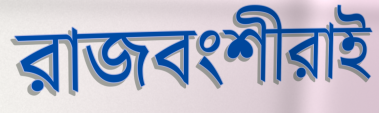
রাজবংশীরাই